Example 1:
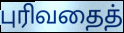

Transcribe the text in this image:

புரிவதைத்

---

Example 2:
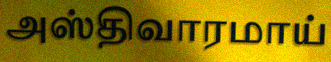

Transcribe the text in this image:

அஸ்திவாரமாய்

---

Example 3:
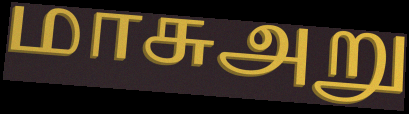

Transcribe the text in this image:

மாசுஅறு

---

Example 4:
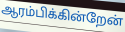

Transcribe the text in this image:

ஆரம்பிக்கின்றேன்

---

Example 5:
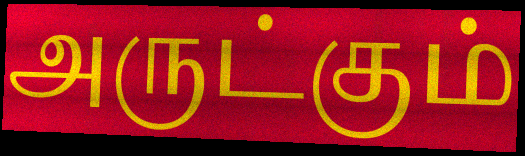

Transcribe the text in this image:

அருட்கும்